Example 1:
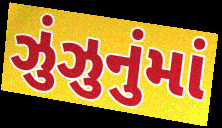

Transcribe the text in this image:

ઝુંઝુનુંમાં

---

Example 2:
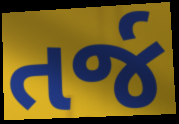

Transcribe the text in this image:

તર્જ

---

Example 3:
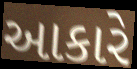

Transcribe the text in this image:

આકારે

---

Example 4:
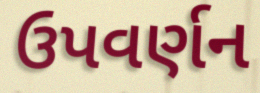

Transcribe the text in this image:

ઉપવર્ણન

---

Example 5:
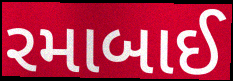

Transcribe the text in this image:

રમાબાઈ